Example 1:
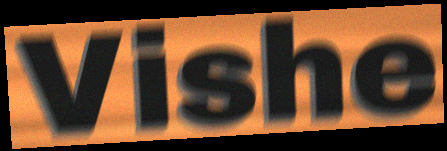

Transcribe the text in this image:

Vishe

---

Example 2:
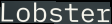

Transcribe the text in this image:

Lobster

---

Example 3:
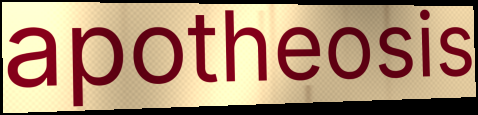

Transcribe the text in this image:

apotheosis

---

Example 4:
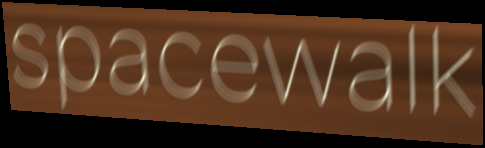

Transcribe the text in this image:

spacewalk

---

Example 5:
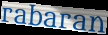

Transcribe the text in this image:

rabaran